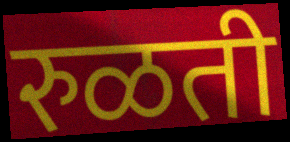
रुळती